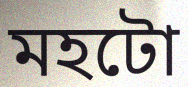
মহটো